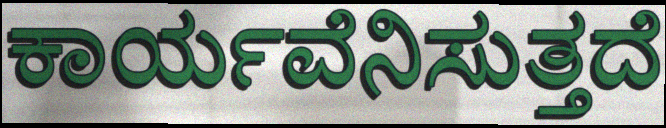
ಕಾರ್ಯವೆನಿಸುತ್ತದೆ